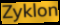
Zyklon